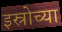
इस्रोच्या